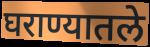
घराण्यातले